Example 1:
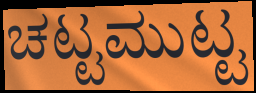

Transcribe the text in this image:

ಚಟ್ಟಮುಟ್ಟ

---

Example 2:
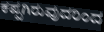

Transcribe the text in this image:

ಕಪ್ಪಗಿರುವುದರಿಂದ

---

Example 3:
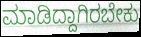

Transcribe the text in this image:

ಮಾಡಿದ್ದಾಗಿರಬೇಕು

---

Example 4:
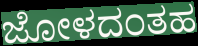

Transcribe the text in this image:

ಜೋಳದಂತಹ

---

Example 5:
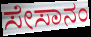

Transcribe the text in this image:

ಸೇಸಾನಂ